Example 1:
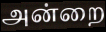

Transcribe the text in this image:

அன்றை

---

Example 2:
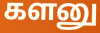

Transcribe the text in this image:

களனு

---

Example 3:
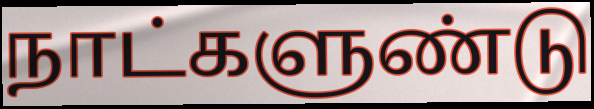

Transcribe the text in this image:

நாட்களுண்டு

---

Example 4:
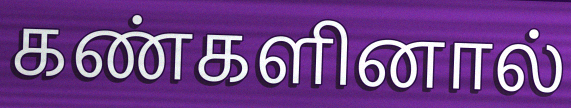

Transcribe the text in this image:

கண்களினால்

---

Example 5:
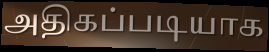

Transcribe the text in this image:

அதிகப்படியாக